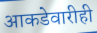
आकडेवारीही